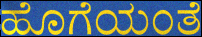
ಹೊಗೆಯಂತೆ